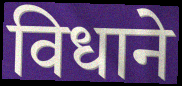
विधाने